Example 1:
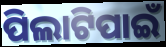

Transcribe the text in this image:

ପିଲାଟିପାଇଁ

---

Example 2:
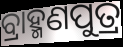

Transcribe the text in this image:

ବ୍ରାହ୍ମଣପୁତ୍ର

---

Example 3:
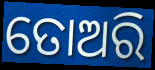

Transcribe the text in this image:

ତୋଅରି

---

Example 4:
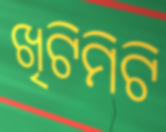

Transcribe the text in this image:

ଖିଟିମିଟି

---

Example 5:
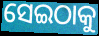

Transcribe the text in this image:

ସେଇଠାକୁ